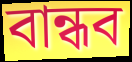
বান্ধব